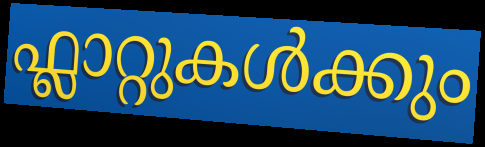
ഫ്ലാറ്റുകൾക്കും